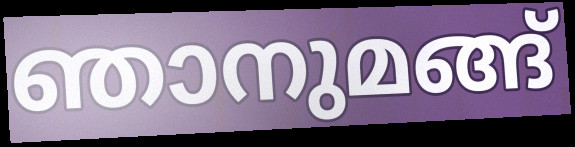
ഞാനുമങ്ങ്